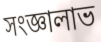
সংজ্ঞালাভ